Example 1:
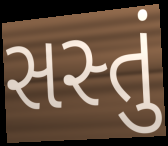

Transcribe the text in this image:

સસ્તું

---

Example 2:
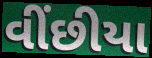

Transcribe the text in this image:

વીંછીયા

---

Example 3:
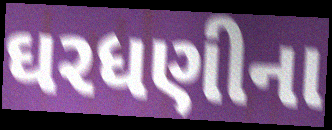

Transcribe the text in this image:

ઘરધણીના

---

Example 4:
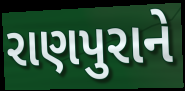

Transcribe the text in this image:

રાણપુરાને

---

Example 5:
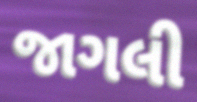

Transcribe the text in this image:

જાગલી